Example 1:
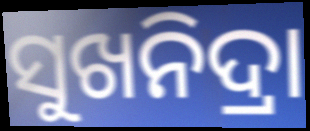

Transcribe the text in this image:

ସୁଖନିଦ୍ରା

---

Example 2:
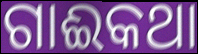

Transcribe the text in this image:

ଗାଈକଥା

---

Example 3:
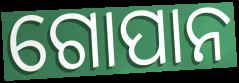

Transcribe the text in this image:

ଗୋପାନ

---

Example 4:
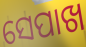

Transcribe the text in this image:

ସେପାଖ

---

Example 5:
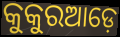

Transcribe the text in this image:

କୁକୁରଆଡ଼େ